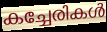
കച്ചേരികൾ